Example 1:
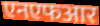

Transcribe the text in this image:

एनएफआर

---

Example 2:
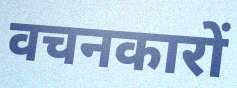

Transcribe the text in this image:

वचनकारों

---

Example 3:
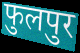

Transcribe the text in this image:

फुलपुर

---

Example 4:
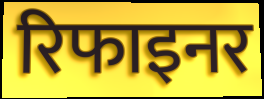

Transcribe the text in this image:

रिफाइनर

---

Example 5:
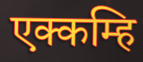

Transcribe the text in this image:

एक्कम्हि